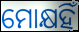
ମୋକ୍ଷହିଁ